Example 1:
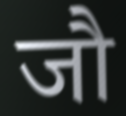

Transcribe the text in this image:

जौ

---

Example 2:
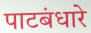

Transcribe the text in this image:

पाटबंधारे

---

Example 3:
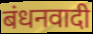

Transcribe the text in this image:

बंधनवादी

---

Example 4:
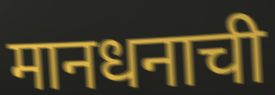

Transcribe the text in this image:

मानधनाची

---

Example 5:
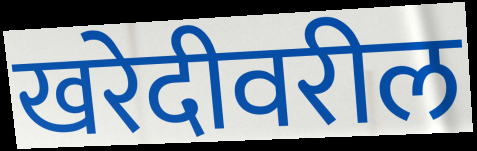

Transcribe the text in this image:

खरेदीवरील